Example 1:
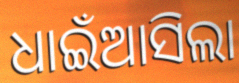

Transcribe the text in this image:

ଧାଇଁଆସିଲା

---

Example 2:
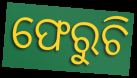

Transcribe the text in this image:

ଫେରୁଚି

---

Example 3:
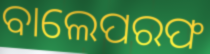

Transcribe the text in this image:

ବାଲେପରଫ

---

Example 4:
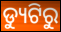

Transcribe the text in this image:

ଡ୍ୟୁଟିରୁ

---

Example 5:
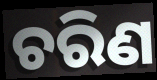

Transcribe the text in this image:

ଚରିଣ